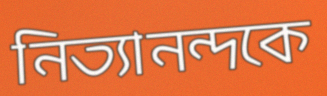
নিত্যানন্দকে